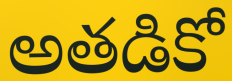
అతడికో